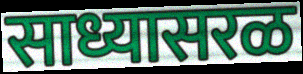
साध्यासरळ